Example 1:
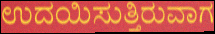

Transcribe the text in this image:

ಉದಯಿಸುತ್ತಿರುವಾಗ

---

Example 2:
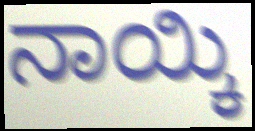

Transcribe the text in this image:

ನಾಯ್ಕಿ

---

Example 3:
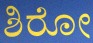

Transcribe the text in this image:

ಶಿರೋ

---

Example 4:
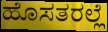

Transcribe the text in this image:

ಹೊಸತರಲ್ಲೆ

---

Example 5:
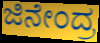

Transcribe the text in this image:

ಜಿನೇಂದ್ರ